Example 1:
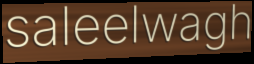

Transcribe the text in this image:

saleelwagh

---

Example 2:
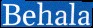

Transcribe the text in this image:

Behala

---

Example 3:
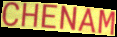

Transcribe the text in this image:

CHENAM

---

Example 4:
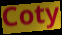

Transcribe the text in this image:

Coty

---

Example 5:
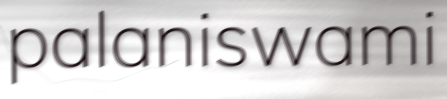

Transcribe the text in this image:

palaniswami